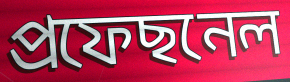
প্ৰফেছনেল